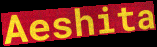
Aeshita